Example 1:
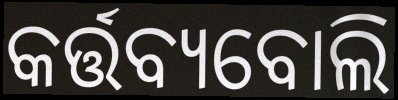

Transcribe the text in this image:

କର୍ତ୍ତବ୍ୟବୋଲି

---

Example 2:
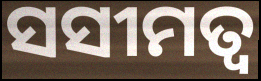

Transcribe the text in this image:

ସସୀମତ୍ୱ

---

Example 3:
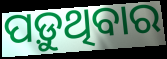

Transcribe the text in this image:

ପଡ଼ୁଥିବାର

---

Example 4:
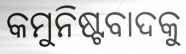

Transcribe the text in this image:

କମୁନିଷ୍ଟବାଦକୁ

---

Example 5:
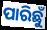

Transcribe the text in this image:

ପାରିଛୁଁ